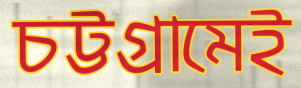
চট্টগ্রামেই